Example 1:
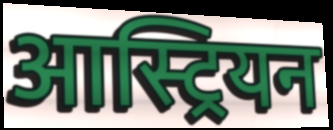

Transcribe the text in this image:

आस्ट्रियन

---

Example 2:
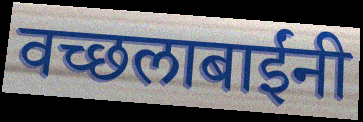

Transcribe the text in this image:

वच्छलाबाईंनी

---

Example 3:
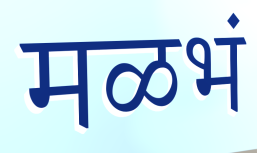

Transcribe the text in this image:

मळभं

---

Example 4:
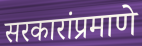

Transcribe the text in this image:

सरकारांप्रमाणे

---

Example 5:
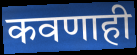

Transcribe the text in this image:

कवणाही